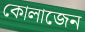
কোলাজেন